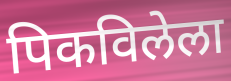
पिकविलेला